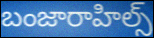
బంజారాహిల్స్